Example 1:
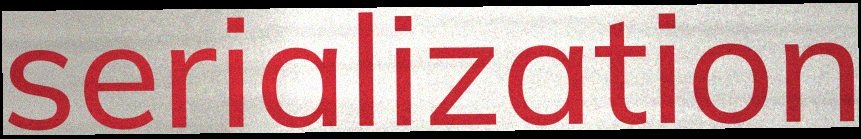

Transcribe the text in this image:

serialization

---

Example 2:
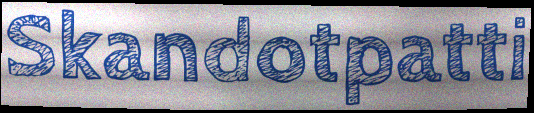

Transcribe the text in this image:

Skandotpatti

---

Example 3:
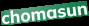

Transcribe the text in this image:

chomasun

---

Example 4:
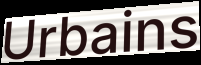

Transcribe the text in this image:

Urbains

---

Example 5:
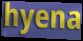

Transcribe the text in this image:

hyena